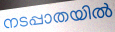
നടപ്പാതയിൽ